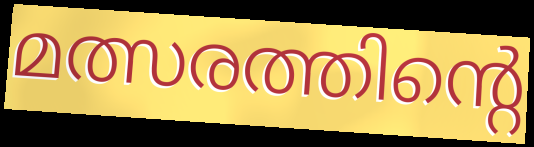
മത്സരത്തിന്റെ